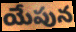
యేపున